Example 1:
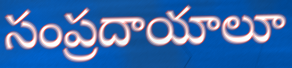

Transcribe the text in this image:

సంప్రదాయాలూ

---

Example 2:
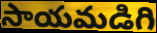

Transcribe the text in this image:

సాయమడిగి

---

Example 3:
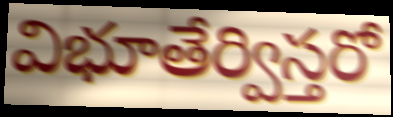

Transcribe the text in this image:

విభూతేర్విస్తరో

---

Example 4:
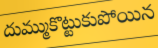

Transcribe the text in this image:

దుమ్ముకొట్టుకుపోయిన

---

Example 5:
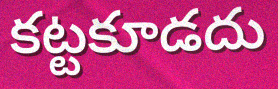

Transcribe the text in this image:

కట్టకూడదు